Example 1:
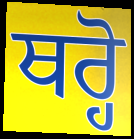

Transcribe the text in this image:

ਥਰ੍ਹੋ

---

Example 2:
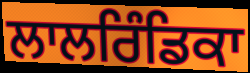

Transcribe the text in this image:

ਲਾਲਰਿੰਡਿਕਾ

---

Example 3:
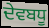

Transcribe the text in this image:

ਦੇਵਬਧੂ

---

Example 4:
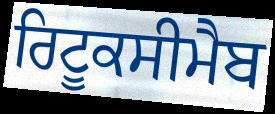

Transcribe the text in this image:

ਰਿਟੂਕਸੀਮੈਬ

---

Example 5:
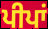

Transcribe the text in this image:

ਪੀਪਾਂ